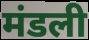
मंडली